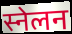
स्नेलन